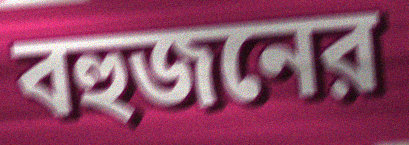
বহুজনের